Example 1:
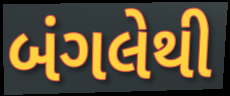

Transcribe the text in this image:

બંગલેથી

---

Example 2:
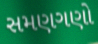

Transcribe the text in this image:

સમણગણો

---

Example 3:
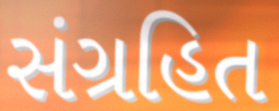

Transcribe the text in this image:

સંગ્રહિત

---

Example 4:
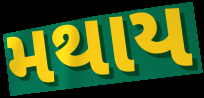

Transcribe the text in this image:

મથાય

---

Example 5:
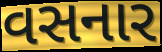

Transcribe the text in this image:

વસનાર